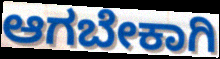
ಆಗಬೇಕಾಗಿ